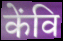
केंवि